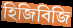
হিজিবিজি